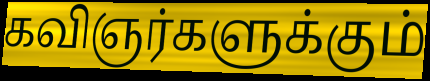
கவிஞர்களுக்கும்